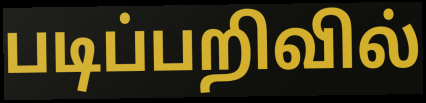
படிப்பறிவில்